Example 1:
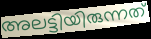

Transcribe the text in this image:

അലട്ടിയിരുന്നത്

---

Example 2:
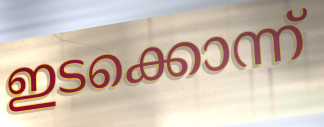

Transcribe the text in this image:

ഇടക്കൊന്ന്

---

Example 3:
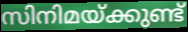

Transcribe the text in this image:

സിനിമയ്ക്കുണ്ട്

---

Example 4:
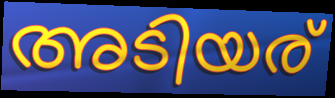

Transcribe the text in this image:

അടിയര്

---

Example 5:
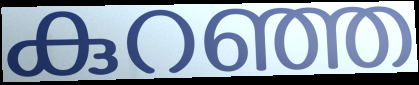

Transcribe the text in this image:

കുറഞ്ഞ